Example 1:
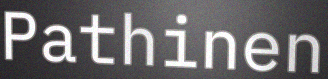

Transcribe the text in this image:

Pathinen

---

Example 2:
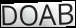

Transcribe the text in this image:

DOAB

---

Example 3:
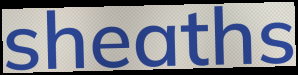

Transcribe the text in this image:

sheaths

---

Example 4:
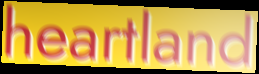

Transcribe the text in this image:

heartland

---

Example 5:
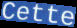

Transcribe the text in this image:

Cette